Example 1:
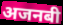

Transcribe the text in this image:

अजनबी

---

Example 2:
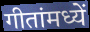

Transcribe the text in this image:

गीतांमध्यें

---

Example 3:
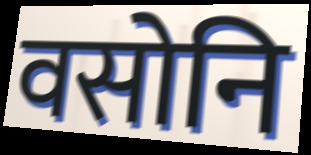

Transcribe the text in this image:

वसोनि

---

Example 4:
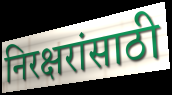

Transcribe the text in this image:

निरक्षरांसाठी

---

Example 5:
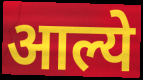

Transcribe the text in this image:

आल्ये